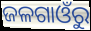
ଜଳଗାଓଁରୁ